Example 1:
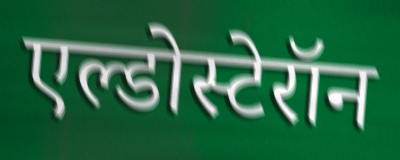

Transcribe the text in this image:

एल्डोस्टेरॉन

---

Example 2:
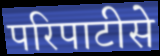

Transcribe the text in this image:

परिपाटीसे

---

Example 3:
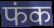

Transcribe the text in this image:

फंक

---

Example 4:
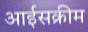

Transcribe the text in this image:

आईसक्रीम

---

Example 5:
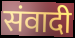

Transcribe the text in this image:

संवादी